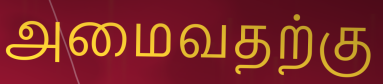
அமைவதற்கு